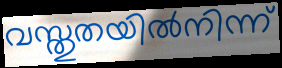
വസ്തുതയിൽനിന്ന്